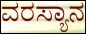
ವರಸ್ಯಾನ